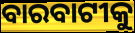
ବାରବାଟୀକୁ